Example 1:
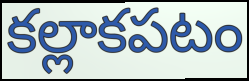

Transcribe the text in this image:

కల్లాకపటం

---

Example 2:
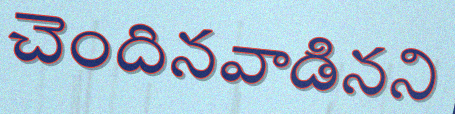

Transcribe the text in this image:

చెందినవాడినని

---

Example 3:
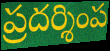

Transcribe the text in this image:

ప్రదర్శింప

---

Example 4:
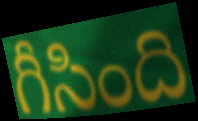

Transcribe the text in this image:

గీసింది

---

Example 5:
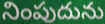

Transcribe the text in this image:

నింపుదును